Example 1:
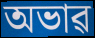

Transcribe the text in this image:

অভাৱ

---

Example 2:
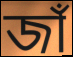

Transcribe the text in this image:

জাঁ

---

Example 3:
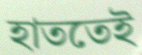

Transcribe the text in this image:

হাততেই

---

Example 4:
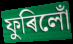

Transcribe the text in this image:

ফুৰিলোঁ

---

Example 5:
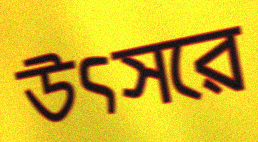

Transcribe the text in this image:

উৎসৱে